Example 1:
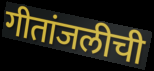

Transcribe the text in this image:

गीतांजलीची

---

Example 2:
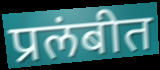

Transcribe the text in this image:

प्रलंबीत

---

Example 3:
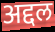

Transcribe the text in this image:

अद्दल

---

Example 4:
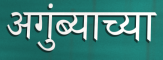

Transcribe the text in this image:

अगुंब्याच्या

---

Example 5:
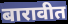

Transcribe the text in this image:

बारावीत